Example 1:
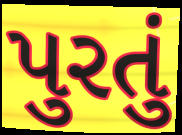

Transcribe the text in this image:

પુરતું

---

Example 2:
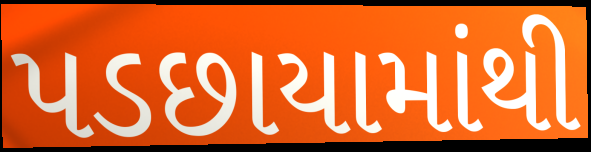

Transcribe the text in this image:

પડછાયામાંથી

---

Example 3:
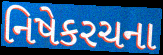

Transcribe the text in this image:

નિષેકરચના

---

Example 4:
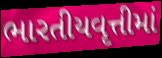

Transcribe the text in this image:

ભારતીયવૃત્તીમાં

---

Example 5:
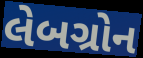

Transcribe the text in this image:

લેબગ્રોન